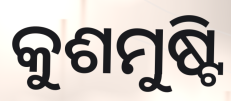
କୁଶମୁଷ୍ଟି